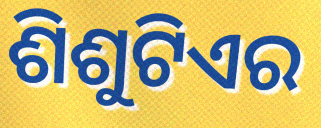
ଶିଶୁଟିଏର